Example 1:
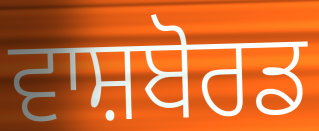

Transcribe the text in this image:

ਵਾਸ਼ਬੋਰਡ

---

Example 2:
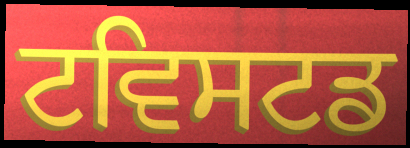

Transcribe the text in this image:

ਟਵਿਸਟਡ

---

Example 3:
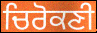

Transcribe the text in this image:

ਚਿਰੋਕਣੀ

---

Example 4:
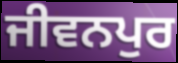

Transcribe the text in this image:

ਜੀਵਨਪੁਰ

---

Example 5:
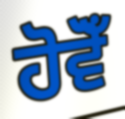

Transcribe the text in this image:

ਹੋਵੋਁ